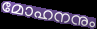
മോഹനനും